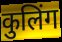
कुलिंग